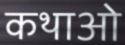
कथाओ